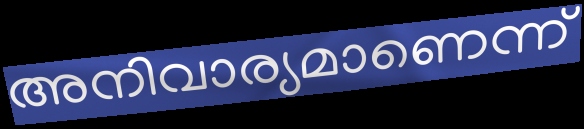
അനിവാര്യമാണെന്ന്